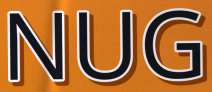
NUG